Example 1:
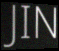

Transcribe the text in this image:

JIN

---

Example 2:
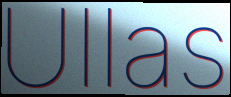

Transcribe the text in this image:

Ullas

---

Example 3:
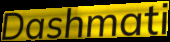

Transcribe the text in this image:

Dashmati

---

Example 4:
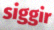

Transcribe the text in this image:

siggir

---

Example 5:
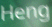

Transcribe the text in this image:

Heng